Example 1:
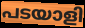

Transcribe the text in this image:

പടയാളി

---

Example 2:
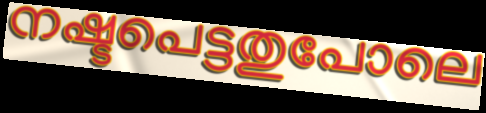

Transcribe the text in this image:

നഷ്ടപെട്ടതുപോലെ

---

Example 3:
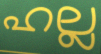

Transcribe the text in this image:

ഹല്ല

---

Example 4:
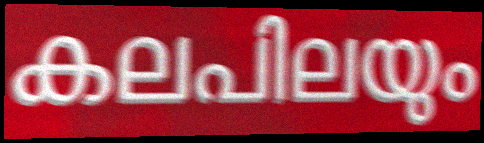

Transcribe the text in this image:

കലപിലയും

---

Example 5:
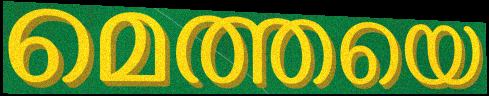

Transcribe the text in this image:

മെത്തയെ